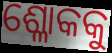
ଶ୍ଳୋକକୁ